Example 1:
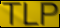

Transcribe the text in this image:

TLP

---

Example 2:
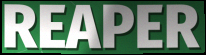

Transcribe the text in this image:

REAPER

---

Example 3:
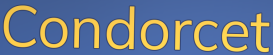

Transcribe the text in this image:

Condorcet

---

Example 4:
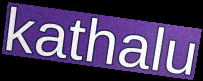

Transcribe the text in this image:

kathalu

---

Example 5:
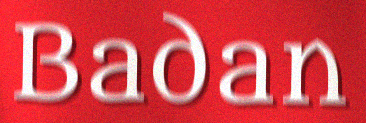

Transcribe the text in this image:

Badan